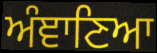
ਅੰਞਾਣਿਆ